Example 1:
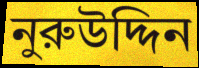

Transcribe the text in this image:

নুরুউদ্দিন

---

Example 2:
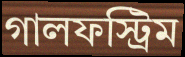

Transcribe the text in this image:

গালফস্ট্রিম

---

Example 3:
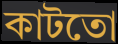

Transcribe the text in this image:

কাটতো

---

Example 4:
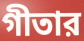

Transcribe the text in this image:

গীতার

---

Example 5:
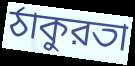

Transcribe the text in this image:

ঠাকুরতা